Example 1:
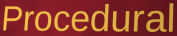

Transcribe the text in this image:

Procedural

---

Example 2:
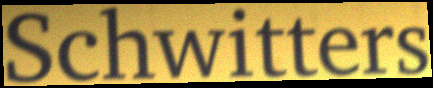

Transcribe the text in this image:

Schwitters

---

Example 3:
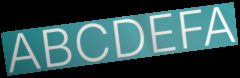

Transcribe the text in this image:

ABCDEFA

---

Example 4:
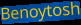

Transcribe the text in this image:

Benoytosh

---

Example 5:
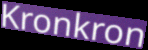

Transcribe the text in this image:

Kronkron